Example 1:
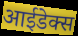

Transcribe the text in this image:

आईडेक्स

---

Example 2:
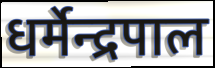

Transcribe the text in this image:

धर्मेन्द्रपाल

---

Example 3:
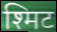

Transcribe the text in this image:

श्मिट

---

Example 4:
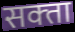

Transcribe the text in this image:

सक्‍ता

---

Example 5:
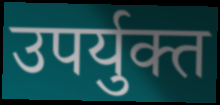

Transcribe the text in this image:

उपर्युक्त